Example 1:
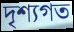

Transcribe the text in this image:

দৃশ্যগত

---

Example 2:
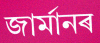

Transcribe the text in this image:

জাৰ্মানৰ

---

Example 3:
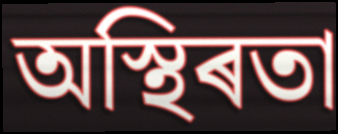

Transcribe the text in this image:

অস্থিৰতা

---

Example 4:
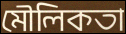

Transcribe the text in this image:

মৌলিকতা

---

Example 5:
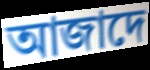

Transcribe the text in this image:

আজাদে